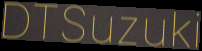
DTSuzuki